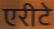
एरीटे